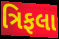
ત્રિફલા